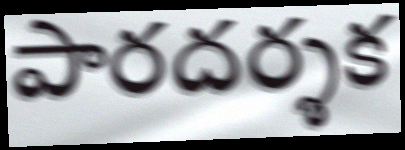
పారదర్శక